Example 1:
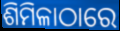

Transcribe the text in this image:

ଶିମିଳାଠାରେ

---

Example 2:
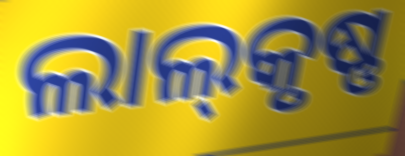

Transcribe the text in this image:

ଲାଲ୍‌କୃଷ୍ଣ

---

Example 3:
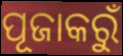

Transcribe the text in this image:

ପୂଜାକରୁଁ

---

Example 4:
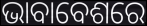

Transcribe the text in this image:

ଭାବାବେଶରେ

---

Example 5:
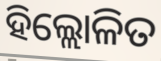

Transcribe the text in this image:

ହିଲ୍ଲୋଳିତ